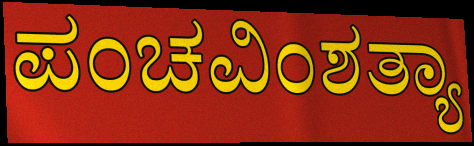
ಪಂಚವಿಂಶತ್ಯಾ